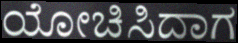
ಯೋಚಿಸಿದಾಗ